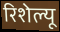
रिशेल्यू